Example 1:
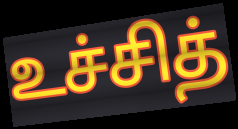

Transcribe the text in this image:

உச்சித்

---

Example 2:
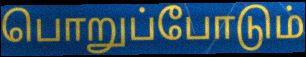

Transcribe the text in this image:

பொறுப்போடும்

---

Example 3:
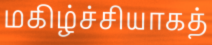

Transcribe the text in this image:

மகிழ்ச்சியாகத்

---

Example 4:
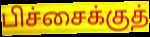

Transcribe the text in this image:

பிச்சைக்குத்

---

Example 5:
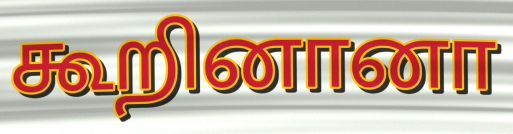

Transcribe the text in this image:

கூறினானா